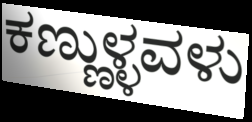
ಕಣ್ಣುಳ್ಳವಳು